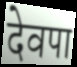
देवपा